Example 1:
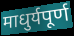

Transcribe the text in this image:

माधुर्यपूर्ण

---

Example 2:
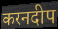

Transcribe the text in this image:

करनदीप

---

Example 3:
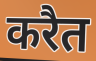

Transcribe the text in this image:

करैत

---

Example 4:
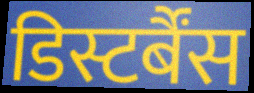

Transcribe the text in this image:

डिस्टर्बैंस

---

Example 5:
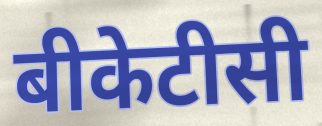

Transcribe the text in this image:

बीकेटीसी